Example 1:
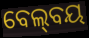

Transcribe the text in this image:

ବେଲ୍‍ବୟ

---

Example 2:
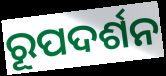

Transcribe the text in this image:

ରୂପଦର୍ଶନ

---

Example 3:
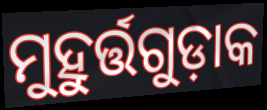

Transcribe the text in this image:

ମୁହୁର୍ତ୍ତଗୁଡ଼ାକ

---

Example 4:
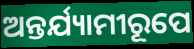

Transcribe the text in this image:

ଅନ୍ତର୍ଯ୍ୟାମୀରୂପେ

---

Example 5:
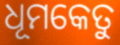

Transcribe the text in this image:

ଧୂମକେତୁ